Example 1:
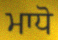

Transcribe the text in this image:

ਮਾਧੋ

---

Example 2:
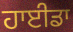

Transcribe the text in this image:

ਹਾਈਡਾ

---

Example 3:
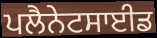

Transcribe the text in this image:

ਪਲੈਨੇਟਸਾਈਡ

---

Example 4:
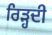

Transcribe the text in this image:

ਰਿੜ੍ਹਦੀ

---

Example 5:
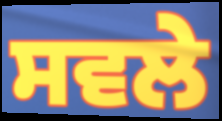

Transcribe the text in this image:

ਸਵਲੇ